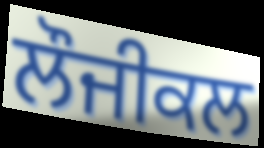
ਲੌਜੀਕਲ